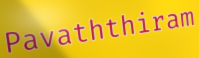
Pavaththiram